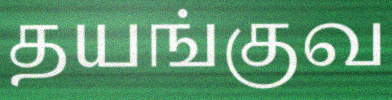
தயங்குவ